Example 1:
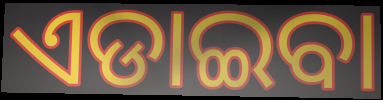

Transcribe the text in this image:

ଏଡାଇବା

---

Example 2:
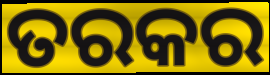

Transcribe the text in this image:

ତରକର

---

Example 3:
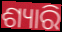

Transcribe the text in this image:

ଶ୍ୟାରି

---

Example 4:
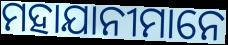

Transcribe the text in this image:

ମହାଯାନୀମାନେ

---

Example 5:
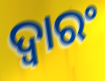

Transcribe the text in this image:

ଦ୍ୱାରଂ